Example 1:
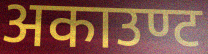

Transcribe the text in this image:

अकाउण्ट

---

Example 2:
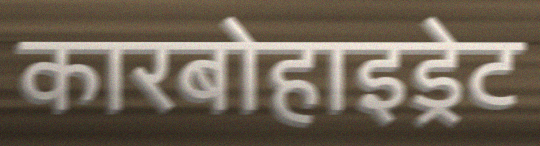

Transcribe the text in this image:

कारबोहाइड्रेट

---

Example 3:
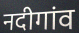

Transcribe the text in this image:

नदीगांव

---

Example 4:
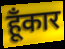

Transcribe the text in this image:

हूँकार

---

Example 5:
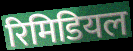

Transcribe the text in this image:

रिमिडियल